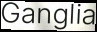
Ganglia